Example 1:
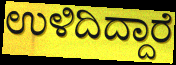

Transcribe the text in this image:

ಉಳಿದಿದ್ದಾರೆ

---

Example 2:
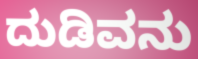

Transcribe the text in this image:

ದುಡಿವನು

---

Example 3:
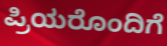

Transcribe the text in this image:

ಪ್ರಿಯರೊಂದಿಗೆ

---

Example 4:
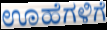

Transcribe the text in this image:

ಊಹೆಗಳಿಗೆ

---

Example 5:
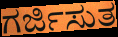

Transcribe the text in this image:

ಗರ್ಜಿಸುತ